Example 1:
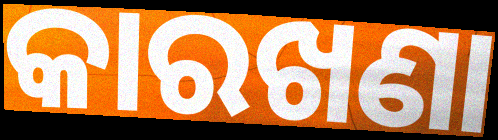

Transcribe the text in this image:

କାରଖଣା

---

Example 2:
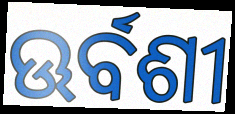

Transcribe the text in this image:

ଊର୍ବଶୀ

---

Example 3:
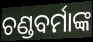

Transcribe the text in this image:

ଚଣ୍ଡବର୍ମାଙ୍କ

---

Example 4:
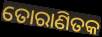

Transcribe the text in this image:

ତୋରାଣିତକ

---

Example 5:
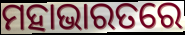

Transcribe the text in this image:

ମହାଭାରତରେ